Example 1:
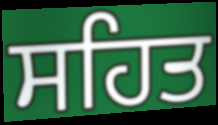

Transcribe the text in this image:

ਸਹਿਤ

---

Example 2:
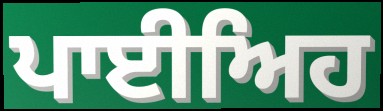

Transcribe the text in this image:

ਪਾਈਅਿਹ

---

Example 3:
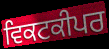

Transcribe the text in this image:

ਵਿਕਟਕੀਪਰ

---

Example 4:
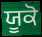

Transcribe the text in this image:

ਯੂਕੋ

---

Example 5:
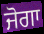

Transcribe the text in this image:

ਜੋਗਾ